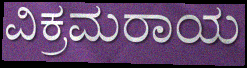
ವಿಕ್ರಮರಾಯ